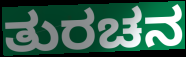
ತುರಚನ